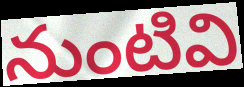
నుంటివి